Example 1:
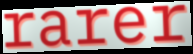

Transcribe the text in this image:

rarer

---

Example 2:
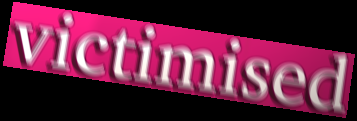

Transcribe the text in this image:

victimised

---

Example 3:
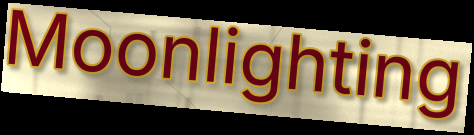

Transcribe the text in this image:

Moonlighting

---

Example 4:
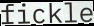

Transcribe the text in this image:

fickle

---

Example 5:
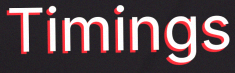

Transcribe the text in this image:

Timings